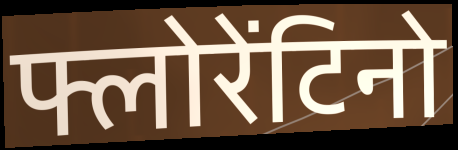
फ्लोरेंटिनो